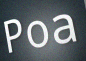
Poa